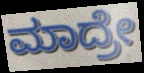
ಮಾದ್ರೇ